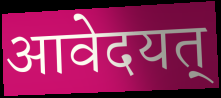
आवेदयत्